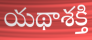
యథాశక్తి